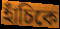
হাঁচিকে